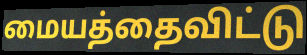
மையத்தைவிட்டு